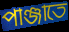
পাঞ্জাতে